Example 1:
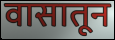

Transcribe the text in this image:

वासातून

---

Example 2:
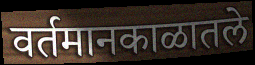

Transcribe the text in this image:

वर्तमानकाळातले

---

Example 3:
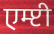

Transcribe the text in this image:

एम्प्टी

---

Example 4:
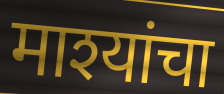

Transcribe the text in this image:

माश्यांचा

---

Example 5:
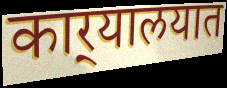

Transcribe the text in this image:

कार्यालयात